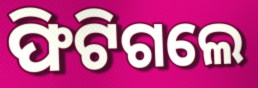
ଫିଟିଗଲେ